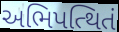
અભિપત્થિતં